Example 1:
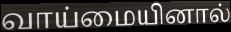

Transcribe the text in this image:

வாய்மையினால்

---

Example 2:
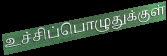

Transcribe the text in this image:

உச்சிப்பொழுதுக்குள்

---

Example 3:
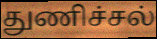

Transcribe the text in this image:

துணிச்சல்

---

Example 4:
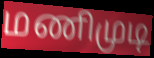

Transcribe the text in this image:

மணிமுடி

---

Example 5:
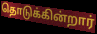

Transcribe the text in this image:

தொடுக்கின்றார்